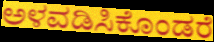
ಅಳವಡಿಸಿಕೊಂಡರೆ